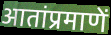
आतांप्रमाणें